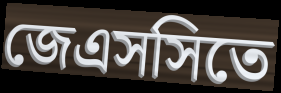
জেএসসিতে